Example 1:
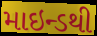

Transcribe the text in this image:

માઇન્ડથી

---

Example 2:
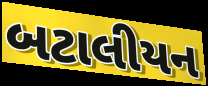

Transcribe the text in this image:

બટાલીયન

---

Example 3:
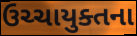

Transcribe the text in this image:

ઉચ્ચાયુક્તના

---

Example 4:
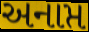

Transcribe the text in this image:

અનાપ્ત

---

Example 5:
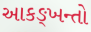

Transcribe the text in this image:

આકઙ્ખન્તો